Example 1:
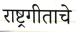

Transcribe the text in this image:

राष्ट्रगीताचे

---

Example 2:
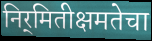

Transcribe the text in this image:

निर्मितीक्षमतेचा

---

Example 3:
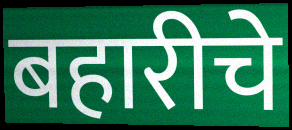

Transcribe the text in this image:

बहारीचे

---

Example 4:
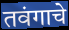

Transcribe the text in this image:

तवंगाचे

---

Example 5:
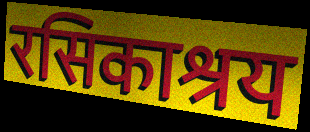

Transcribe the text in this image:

रसिकाश्रय